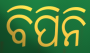
ବିପିନି